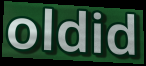
oldid